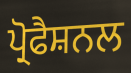
ਪ੍ਰੋਫੈਸ਼ਨਲ